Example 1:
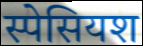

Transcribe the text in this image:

स्पेसियश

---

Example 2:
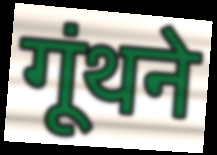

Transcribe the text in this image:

गूंथने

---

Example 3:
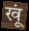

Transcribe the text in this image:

खूं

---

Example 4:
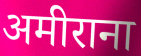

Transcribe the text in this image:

अमीराना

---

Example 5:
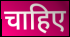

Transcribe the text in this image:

चाहिए